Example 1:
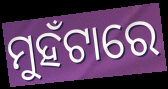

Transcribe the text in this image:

ମୁହଁଟାରେ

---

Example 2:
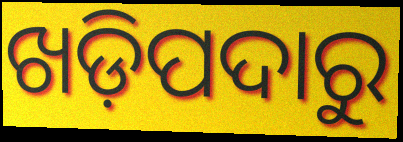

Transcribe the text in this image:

ଖଡ଼ିପଦାରୁ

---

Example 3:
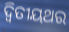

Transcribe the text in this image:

ଦ୍ବିତୀୟଥର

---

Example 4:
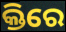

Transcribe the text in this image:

କ୍ତିରେ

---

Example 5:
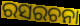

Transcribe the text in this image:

ରସରଚନା